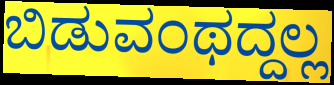
ಬಿಡುವಂಥದ್ದಲ್ಲ